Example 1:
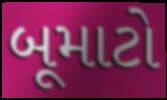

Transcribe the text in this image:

બૂમાટો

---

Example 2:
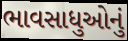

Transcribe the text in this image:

ભાવસાધુઓનું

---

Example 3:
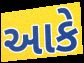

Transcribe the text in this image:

આકે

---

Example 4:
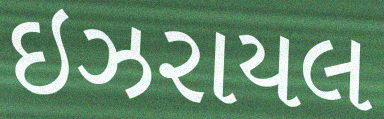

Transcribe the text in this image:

ઇઝરાયલ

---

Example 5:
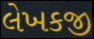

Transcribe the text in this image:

લેખકજી